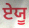
ਏਯੂ